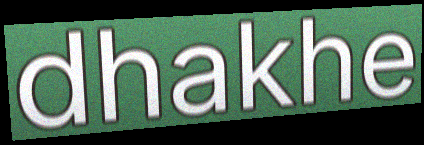
dhakhe